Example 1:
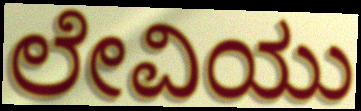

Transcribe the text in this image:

ಲೇವಿಯು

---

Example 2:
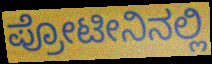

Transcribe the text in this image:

ಪ್ರೋಟೀನಿನಲ್ಲಿ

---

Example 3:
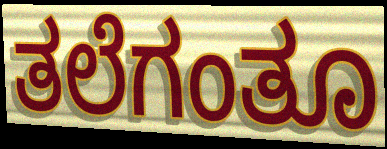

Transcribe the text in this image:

ತಲೆಗಂತೂ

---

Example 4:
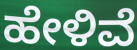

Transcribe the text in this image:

ಹೇಳಿವೆ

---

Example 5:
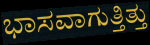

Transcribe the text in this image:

ಭಾಸವಾಗುತ್ತಿತ್ತು